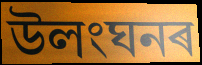
উলংঘনৰ